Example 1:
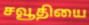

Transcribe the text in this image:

சவூதியை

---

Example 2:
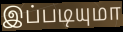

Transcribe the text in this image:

இப்படியுமா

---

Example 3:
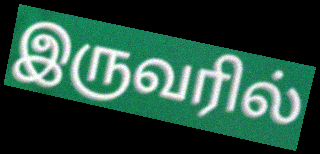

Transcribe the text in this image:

இருவரில்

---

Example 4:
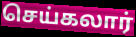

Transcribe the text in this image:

செய்கலார்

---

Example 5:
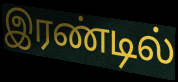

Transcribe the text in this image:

இரண்டில்